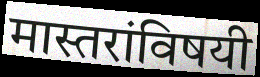
मास्तरांविषयी